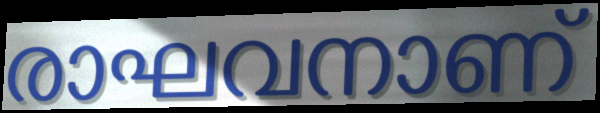
രാഘവനാണ്